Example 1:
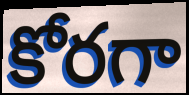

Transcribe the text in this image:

కోరగా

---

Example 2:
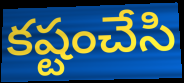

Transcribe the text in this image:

కష్టంచేసి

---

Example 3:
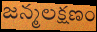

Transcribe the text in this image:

జన్మలక్షణం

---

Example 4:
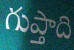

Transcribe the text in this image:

గుప్తాది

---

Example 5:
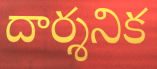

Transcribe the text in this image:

దార్శనిక